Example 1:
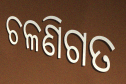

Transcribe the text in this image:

ଚଳଣିଗତ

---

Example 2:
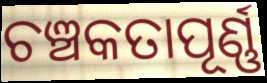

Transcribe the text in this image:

ଚଞ୍ଚକତାପୂର୍ଣ୍ଣ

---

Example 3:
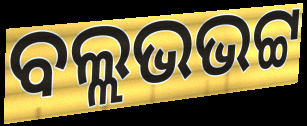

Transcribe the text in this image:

ବଲ୍ଲଭଭଟ୍ଟ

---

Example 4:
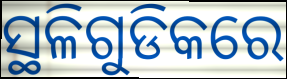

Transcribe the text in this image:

ସ୍ଥଳିଗୁଡିକରେ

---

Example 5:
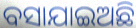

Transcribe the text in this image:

ବସାଯାଇଅଛି